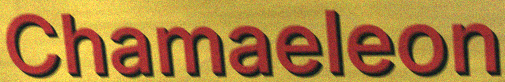
Chamaeleon